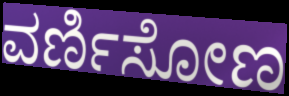
ವರ್ಣಿಸೋಣ